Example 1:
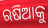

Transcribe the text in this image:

ଋଷିଆକୁ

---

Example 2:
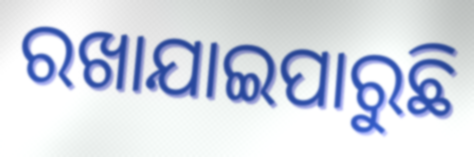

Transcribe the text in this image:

ରଖାଯାଇପାରୁଛି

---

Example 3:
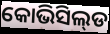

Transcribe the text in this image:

କୋଭିସିଲ୍‌ଡ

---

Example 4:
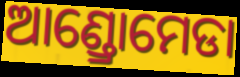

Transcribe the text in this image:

ଆଣ୍ଡ୍ରୋମେଡା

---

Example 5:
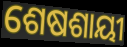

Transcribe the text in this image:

ଶେଷଶାୟୀ